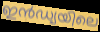
ഇൻഡ്യയിലെ